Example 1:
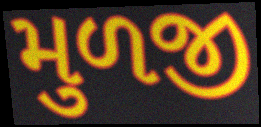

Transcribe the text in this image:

મુળજી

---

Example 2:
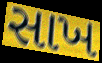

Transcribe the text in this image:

સાખ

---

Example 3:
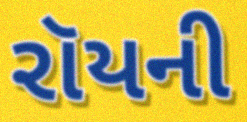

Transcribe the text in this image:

રૉયની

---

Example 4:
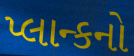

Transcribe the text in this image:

પ્લાન્કનો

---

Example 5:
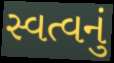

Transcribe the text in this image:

સ્વત્વનું